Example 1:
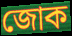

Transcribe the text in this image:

জোক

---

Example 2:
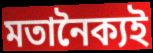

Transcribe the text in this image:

মতানৈক্যই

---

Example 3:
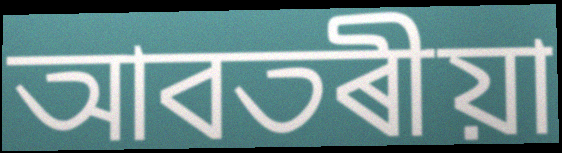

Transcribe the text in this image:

আবতৰীয়া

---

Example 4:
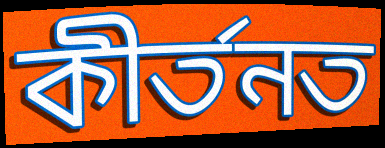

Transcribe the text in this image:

কীৰ্তনত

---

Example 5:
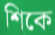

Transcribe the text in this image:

শিকে